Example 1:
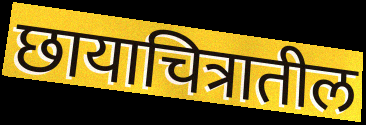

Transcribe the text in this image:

छायाचित्रातील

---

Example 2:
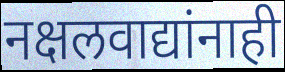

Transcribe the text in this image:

नक्षलवाद्यांनाही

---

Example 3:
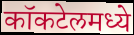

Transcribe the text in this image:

कॉकटेलमध्ये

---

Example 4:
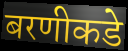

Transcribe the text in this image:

बरणीकडे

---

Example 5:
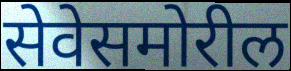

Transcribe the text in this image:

सेवेसमोरील